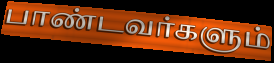
பாண்டவர்களும்